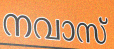
നവാസ്